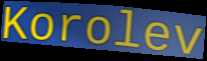
Korolev